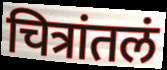
चित्रांतलं